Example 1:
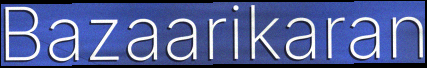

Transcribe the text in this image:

Bazaarikaran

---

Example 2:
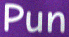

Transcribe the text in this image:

Pun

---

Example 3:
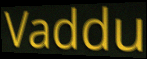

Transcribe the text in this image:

Vaddu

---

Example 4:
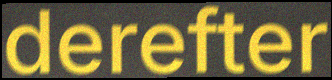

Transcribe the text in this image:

derefter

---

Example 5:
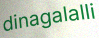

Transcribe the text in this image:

dinagalalli